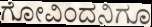
ಗೋವಿಂದನಿಗೂ